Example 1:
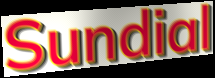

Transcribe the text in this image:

Sundial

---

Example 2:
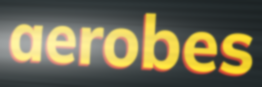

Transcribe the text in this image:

aerobes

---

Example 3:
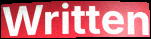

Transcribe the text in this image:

Written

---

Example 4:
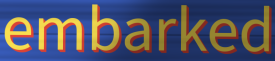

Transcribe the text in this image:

embarked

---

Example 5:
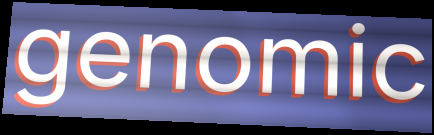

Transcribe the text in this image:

genomic